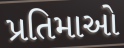
પ્રતિમાઓ